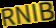
RNIB